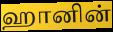
ஹானின்